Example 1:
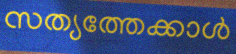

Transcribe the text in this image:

സത്യത്തേക്കാൾ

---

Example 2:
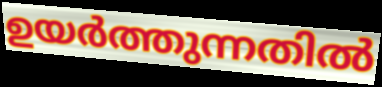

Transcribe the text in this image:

ഉയർത്തുന്നതിൽ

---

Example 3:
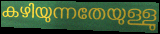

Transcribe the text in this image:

കഴിയുന്നതേയുള്ളു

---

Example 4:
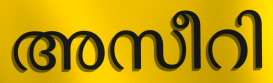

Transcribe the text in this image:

അസീറി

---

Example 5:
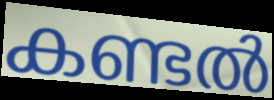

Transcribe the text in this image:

കണ്ടൽ